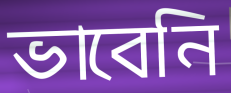
ভাবেনি